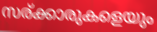
സര്ക്കാരുകളെയും